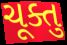
ચૂક્તુ